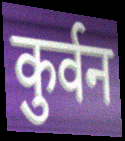
कुर्वन